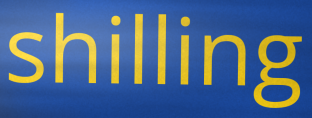
shilling